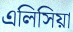
এলিসিয়া